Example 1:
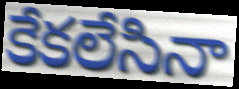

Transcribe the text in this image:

కేకలేసినా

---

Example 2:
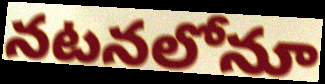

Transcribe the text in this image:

నటనలోనూ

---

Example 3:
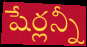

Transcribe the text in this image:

షేర్లన్నీ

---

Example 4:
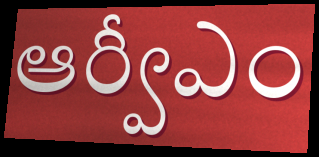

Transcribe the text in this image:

ఆర్వీఎం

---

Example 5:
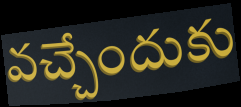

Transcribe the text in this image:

వచ్చేందుకు